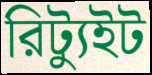
রিট্যুইট